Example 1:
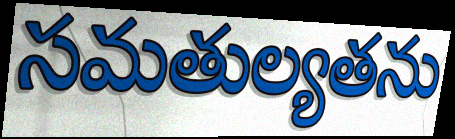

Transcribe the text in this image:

సమతుల్యతను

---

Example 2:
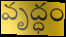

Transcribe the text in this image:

వృద్ధం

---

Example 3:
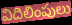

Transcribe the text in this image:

విదిలింపులు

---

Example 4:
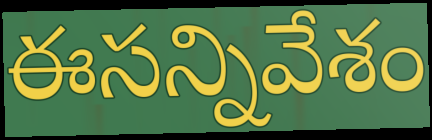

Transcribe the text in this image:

ఈసన్నివేశం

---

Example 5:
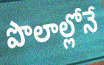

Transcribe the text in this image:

పొలాల్లోనే